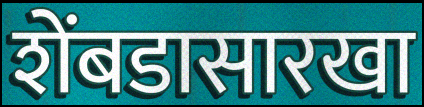
शेंबडासारखा